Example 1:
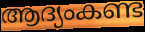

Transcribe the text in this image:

ആദ്യംകണ്ട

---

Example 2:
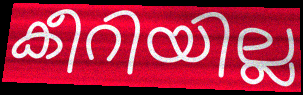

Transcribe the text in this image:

കീറിയില്ല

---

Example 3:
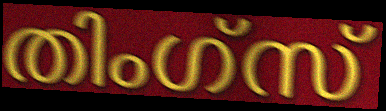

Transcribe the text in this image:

തിംഗ്സ്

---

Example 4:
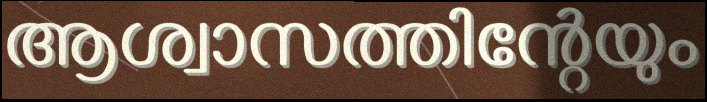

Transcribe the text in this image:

ആശ്വാസത്തിന്റേയും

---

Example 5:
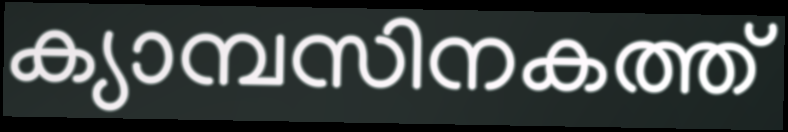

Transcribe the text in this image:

ക്യാമ്പസിനകത്ത്